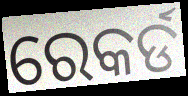
ରେକର୍ଡ